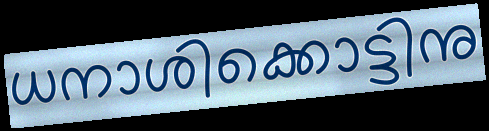
ധനാശിക്കൊട്ടിനു